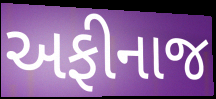
અફીનાજ